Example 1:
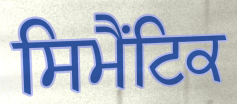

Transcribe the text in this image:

ਸਿਮੈਂਟਿਕ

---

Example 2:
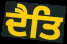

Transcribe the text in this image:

ਦੈਤਿ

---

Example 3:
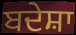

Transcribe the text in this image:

ਬਦੇਸ਼ਾ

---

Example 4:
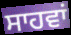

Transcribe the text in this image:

ਸਾਹਵਾਂ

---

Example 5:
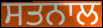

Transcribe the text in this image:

ਸਤਨਾਲ